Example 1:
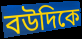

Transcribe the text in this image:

বউদিকে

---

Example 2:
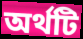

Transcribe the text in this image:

অর্থটি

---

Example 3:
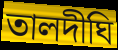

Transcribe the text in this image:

তালদীঘি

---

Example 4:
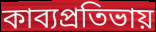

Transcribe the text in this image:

কাব্যপ্রতিভায়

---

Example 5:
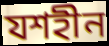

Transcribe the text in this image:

যশহীন